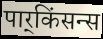
पार्किंसन्स